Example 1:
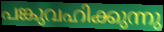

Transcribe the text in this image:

പങ്കുവഹിക്കുന്നു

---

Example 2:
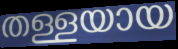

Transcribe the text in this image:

തള്ളയായ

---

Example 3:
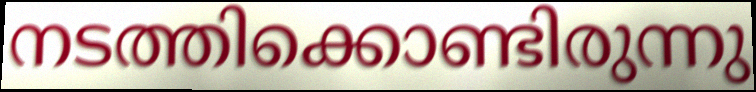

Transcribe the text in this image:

നടത്തിക്കൊണ്ടിരുന്നു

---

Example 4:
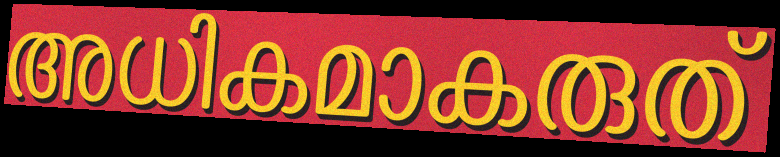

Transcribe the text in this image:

അധികമാകരുത്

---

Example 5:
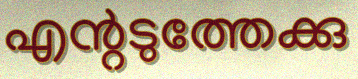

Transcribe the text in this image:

എന്റടുത്തേക്കു